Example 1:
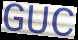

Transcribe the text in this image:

GUC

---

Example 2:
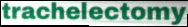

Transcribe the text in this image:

trachelectomy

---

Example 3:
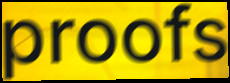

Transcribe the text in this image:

proofs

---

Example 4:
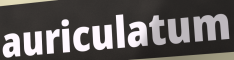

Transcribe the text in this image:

auriculatum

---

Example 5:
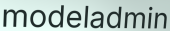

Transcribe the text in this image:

modeladmin